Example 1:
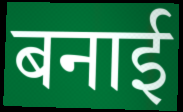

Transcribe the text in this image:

बनाई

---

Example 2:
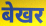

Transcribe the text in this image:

बेखर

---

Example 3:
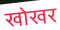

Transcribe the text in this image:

खोखर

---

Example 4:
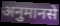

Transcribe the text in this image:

अनुमानसे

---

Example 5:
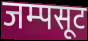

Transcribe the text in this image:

जम्पसूट